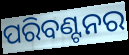
ପରିବଣ୍ଟନର